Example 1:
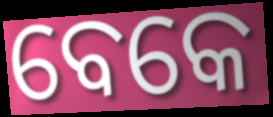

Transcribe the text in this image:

ବେକେ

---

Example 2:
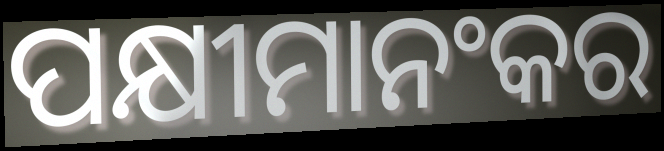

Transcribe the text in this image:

ପକ୍ଷୀମାନଂକର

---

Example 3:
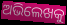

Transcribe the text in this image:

ଅଭିଲେଖକୁ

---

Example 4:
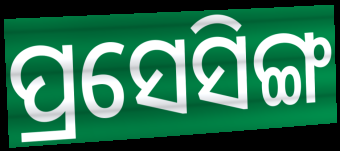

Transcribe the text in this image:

ପ୍ରସେସିଙ୍ଗ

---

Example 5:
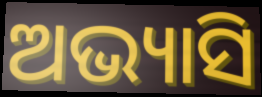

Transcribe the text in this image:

ଅଭ୍ୟାସି